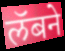
लॅबने